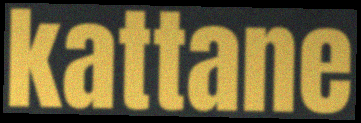
kattane